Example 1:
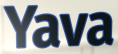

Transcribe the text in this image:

Yava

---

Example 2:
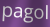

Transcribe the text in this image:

pagol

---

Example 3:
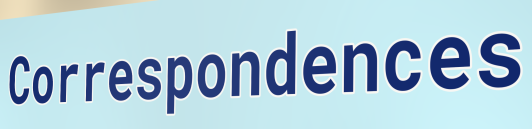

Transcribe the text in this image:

Correspondences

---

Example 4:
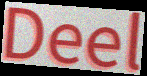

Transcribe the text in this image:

Deel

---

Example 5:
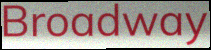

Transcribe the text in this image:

Broadway